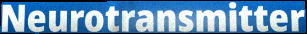
Neurotransmitter